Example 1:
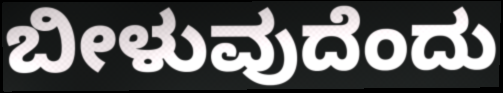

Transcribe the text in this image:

ಬೀಳುವುದೆಂದು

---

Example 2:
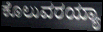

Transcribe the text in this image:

ಕೊಲುವರಯ್ಯಾ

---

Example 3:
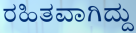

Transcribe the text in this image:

ರಹಿತವಾಗಿದ್ದು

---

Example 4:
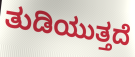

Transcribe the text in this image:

ತುಡಿಯುತ್ತದೆ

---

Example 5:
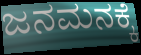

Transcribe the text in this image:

ಜನಮನಕ್ಕೆ